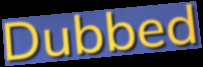
Dubbed